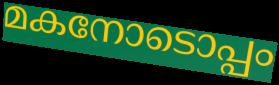
മകനോടൊപ്പം